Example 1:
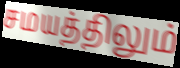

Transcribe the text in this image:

சமயத்திலும்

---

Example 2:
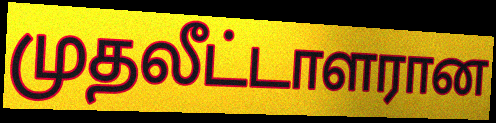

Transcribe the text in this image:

முதலீட்டாளரான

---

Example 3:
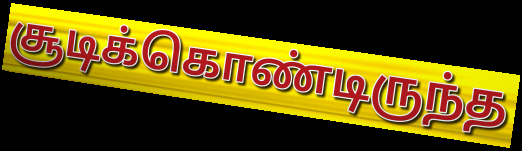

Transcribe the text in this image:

சூடிக்கொண்டிருந்த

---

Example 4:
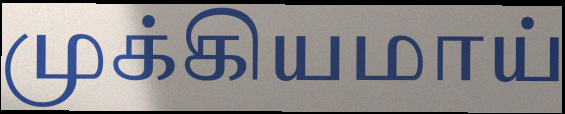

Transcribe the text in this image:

முக்கியமாய்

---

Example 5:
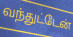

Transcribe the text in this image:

வந்துட்டேன்